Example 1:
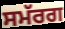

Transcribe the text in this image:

ਸਮੱਰਗ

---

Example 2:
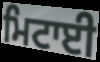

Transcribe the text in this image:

ਮਿਟਾਈ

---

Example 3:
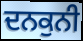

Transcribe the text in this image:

ਦਨਕੁਨੀ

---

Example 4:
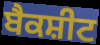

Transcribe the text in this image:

ਬੈਕਸ਼ੀਟ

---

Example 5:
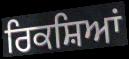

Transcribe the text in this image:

ਰਿਕਸ਼ਿਆਂ